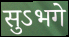
सुऽभगे